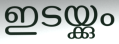
ഇടയ്ക്കും